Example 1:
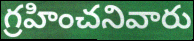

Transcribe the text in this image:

గ్రహించనివారు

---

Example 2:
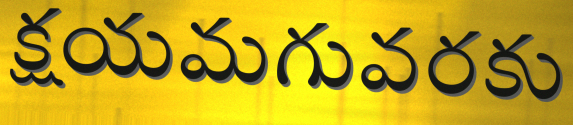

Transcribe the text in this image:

క్షయమగువరకు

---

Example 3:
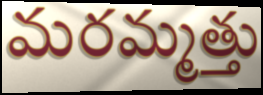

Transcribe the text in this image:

మరమ్మత్తు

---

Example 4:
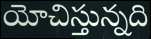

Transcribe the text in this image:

యోచిస్తున్నది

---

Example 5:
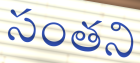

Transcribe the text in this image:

సంతని